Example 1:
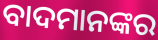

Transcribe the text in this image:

ବାଦମାନଙ୍କର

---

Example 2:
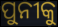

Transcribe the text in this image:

ପୁନୀକୁ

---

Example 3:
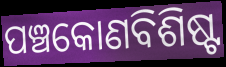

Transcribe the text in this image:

ପଞ୍ଚକୋଣବିଶିଷ୍ଟ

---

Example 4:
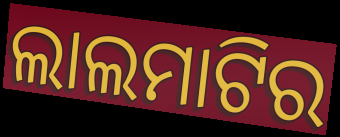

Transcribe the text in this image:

ଲାଲମାଟିର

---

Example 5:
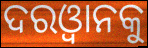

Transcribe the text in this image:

ଦରଓ୍ୱାନକୁ